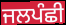
ਜਲਪੰਛੀ